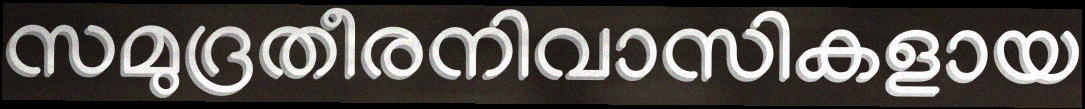
സമുദ്രതീരനിവാസികളായ